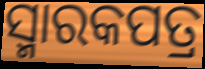
ସ୍ମାରକପତ୍ର